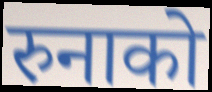
रुनाको